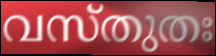
വസ്തുതഃ